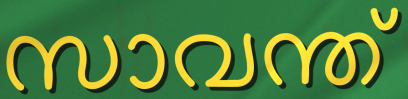
സാവന്ത്